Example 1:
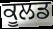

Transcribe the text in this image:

ਕੂਲਡ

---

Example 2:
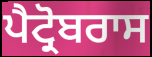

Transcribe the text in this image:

ਪੈਟ੍ਰੋਬਰਾਸ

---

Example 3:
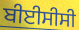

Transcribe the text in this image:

ਬੀਈਸੀਸੀ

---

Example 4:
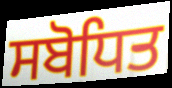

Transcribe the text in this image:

ਸਬੋਧਿਤ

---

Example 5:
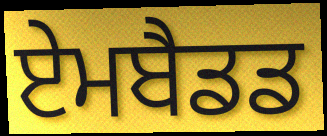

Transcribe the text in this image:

ਏਮਬੈਡਡ